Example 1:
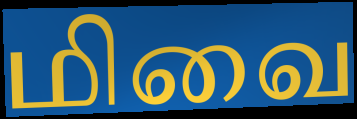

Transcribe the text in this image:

மிவை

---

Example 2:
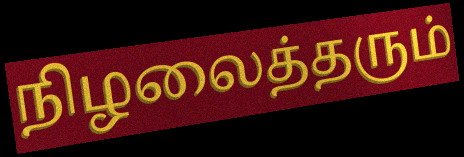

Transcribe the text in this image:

நிழலைத்தரும்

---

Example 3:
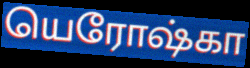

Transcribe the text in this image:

யெரோஷ்கா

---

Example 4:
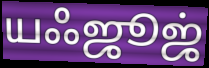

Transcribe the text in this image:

யஃஜூஜ்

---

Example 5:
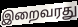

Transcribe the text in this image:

இறைவரது